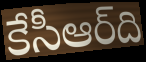
కేసీఆర్‌ది